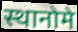
स्थानोमे